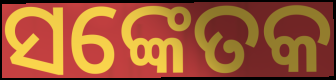
ସଙ୍କେତକ